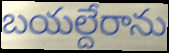
బయల్దేరాను